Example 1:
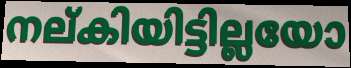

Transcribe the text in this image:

നല്കിയിട്ടില്ലയോ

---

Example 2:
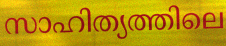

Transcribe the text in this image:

സാഹിത്യത്തിലെ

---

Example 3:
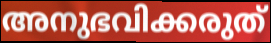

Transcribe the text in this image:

അനുഭവിക്കരുത്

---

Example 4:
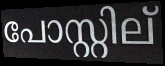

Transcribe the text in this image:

പോസ്റ്റില്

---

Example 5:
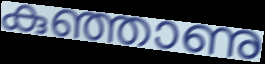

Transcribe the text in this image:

കുഞ്ഞാണു